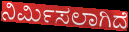
ನಿರ್ಮಿಸಲಾಗಿದೆ